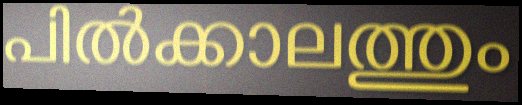
പിൽക്കാലത്തും